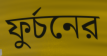
ফুর্চনের